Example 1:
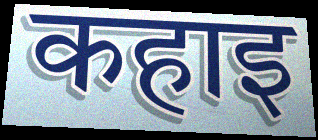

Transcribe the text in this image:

कहाइ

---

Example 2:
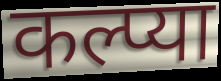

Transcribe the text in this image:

कल्प्या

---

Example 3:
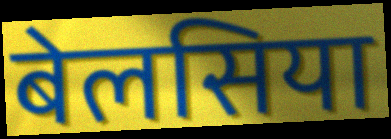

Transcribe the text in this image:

बेलसिया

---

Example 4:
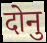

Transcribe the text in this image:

दोनु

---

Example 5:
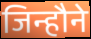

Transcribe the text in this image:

जिन्हौने